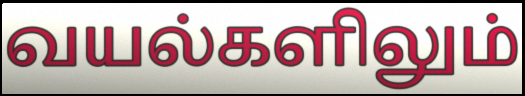
வயல்களிலும்